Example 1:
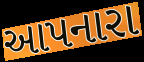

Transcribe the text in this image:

આપનારા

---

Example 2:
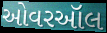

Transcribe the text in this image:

ઓવરઑલ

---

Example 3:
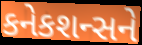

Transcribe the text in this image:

કનેકશન્સને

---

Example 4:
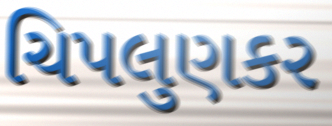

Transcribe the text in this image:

ચિપલુણકર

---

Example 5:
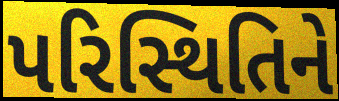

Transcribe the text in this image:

પરિસ્થિતિને